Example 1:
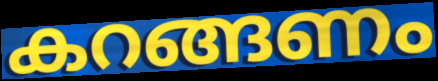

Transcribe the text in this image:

കറങ്ങണം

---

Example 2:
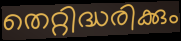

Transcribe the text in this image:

തെറ്റിദ്ധരിക്കും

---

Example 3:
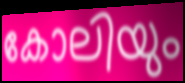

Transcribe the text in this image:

കോലിയും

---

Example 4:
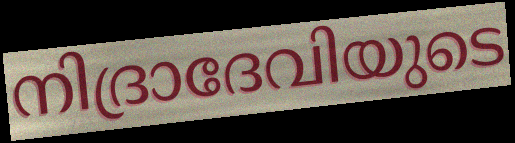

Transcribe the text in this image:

നിദ്രാദേവിയുടെ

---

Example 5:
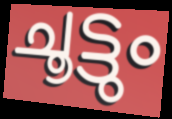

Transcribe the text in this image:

ചൂട്ടും